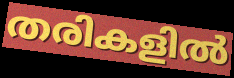
തരികളിൽ